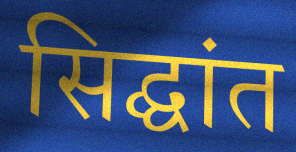
सिद्घांत